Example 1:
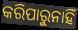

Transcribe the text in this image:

କରିପାରୁନାହିଁ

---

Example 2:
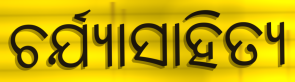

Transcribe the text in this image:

ଚର୍ଯ୍ୟାସାହିତ୍ୟ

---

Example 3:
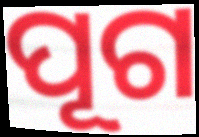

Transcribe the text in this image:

ପୂଗ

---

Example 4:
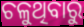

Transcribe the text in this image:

ଚଳୁଥିବାରୁ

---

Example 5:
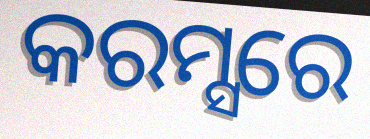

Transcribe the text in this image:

କରମ୍ସରେ